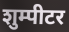
शुम्पीटर